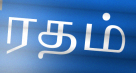
ரதம்